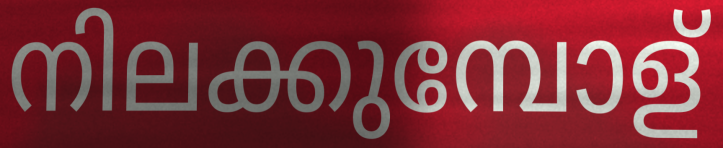
നിലക്കുമ്പോള്